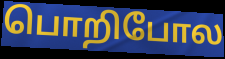
பொறிபோல